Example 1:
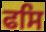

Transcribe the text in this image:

ਫਸਿ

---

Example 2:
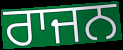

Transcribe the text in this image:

ਰਾਜਨ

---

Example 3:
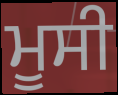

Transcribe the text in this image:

ਮੂਸੀ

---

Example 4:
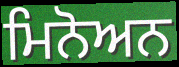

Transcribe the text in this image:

ਮਿਨੋਅਨ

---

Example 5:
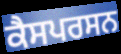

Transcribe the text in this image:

ਕੈਸਪਰਸਨ